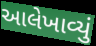
આલેખાવ્યું